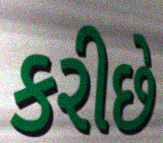
કરીછે